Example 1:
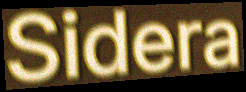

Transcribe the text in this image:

Sidera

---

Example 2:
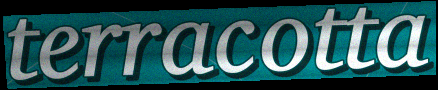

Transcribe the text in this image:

terracotta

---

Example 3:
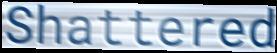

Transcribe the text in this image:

Shattered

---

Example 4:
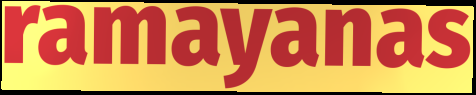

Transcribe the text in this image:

ramayanas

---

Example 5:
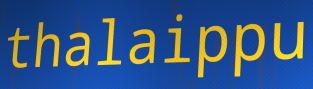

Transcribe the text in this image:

thalaippu